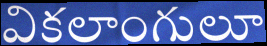
వికలాంగులూ